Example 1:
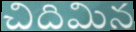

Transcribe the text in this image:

చిదిమిన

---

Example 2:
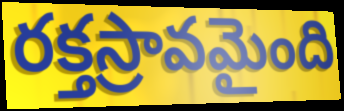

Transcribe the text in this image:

రక్తస్రావమైంది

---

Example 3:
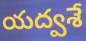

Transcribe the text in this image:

యద్వశే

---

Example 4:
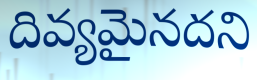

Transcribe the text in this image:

దివ్యమైనదని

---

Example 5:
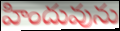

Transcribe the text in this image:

హిందువును